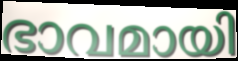
ഭാവമായി